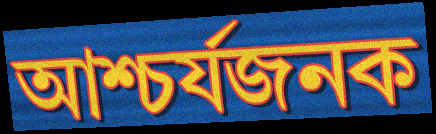
আশ্চর্যজনক